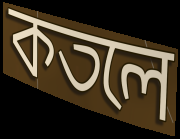
কতলে